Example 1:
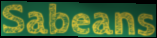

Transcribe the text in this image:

Sabeans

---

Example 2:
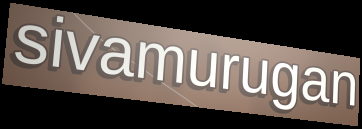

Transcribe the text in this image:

sivamurugan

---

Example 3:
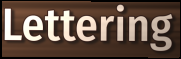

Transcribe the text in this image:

Lettering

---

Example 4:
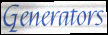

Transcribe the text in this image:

Generators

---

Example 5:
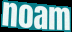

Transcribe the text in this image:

noam